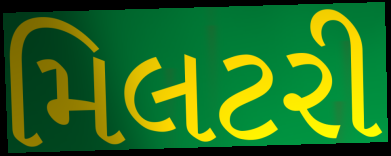
મિલટરી